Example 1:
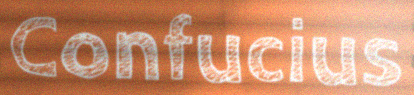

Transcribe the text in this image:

Confucius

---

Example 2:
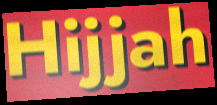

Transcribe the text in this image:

Hijjah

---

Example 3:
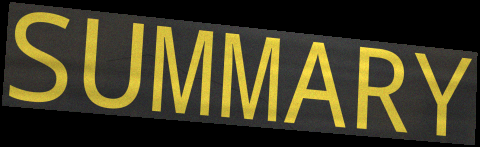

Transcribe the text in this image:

SUMMARY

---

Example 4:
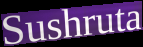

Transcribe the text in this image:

Sushruta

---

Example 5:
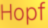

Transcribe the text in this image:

Hopf